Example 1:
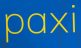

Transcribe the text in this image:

paxi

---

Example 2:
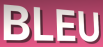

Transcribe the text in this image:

BLEU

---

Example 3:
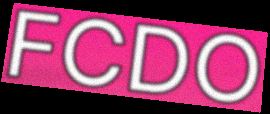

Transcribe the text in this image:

FCDO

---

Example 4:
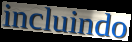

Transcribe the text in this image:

incluindo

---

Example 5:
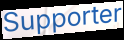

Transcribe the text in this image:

Supporter